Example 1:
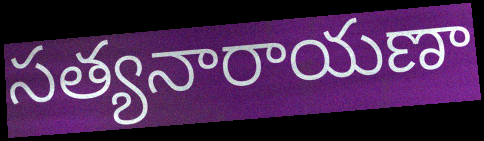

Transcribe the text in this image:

సత్యనారాయణా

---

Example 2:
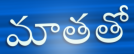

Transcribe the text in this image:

మాతతో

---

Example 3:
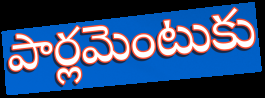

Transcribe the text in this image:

పార్లమెంటుకు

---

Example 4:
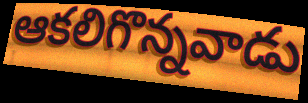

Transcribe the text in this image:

ఆకలిగొన్నవాడు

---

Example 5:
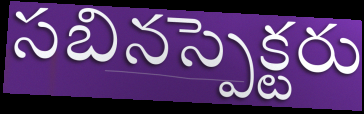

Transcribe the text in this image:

సబినస్పెక్టరు